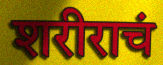
शरीराचं